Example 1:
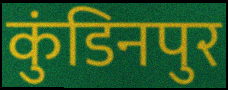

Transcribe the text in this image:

कुंडिनपुर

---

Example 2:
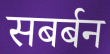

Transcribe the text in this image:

सबर्बन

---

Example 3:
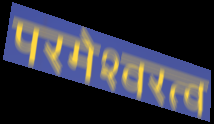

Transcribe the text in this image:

परमेश्वरत्व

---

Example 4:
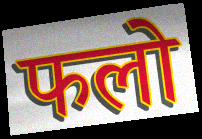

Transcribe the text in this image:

फलो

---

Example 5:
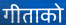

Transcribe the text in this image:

गीताको